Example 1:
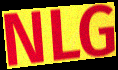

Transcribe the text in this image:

NLG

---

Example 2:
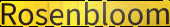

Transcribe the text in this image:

Rosenbloom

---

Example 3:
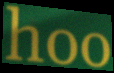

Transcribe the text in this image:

hoo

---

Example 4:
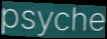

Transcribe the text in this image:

psyche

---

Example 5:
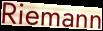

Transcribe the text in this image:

Riemann